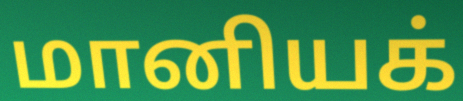
மானியக்